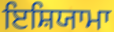
ਇਸ਼ਿਯਾਮਾ